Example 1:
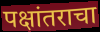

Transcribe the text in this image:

पक्षांतराचा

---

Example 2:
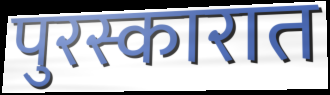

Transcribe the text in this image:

पुरस्कारात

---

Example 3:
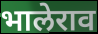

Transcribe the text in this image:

भालेराव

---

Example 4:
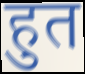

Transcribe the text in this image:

हुत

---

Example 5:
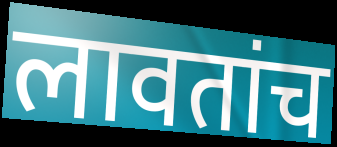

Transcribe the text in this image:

लावतांच